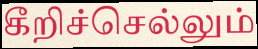
கீறிச்செல்லும்